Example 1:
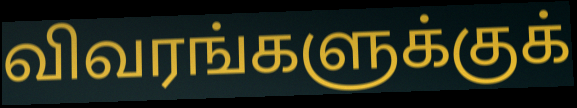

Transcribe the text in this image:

விவரங்களுக்குக்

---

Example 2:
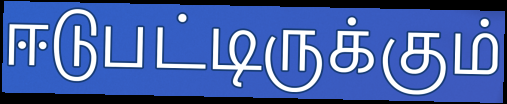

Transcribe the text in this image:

ஈடுபட்டிருக்கும்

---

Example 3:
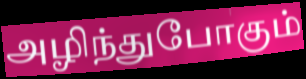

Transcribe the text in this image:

அழிந்துபோகும்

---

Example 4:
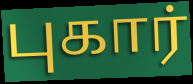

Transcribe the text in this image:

புகார்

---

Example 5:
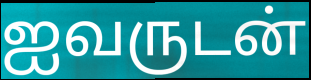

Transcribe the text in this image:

ஐவருடன்